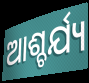
ଆଶ୍ଚର୍ଯ୍ୟ